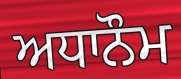
ਅਧਾਨੌਮ